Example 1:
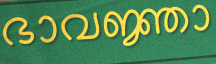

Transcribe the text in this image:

ഭാവജ്ഞാ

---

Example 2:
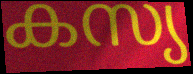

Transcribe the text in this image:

കസ്യ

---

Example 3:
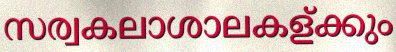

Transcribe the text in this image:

സര്വകലാശാലകള്ക്കും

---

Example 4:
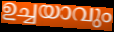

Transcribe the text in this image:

ഉച്ചയാവും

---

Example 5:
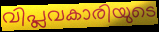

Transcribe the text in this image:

വിപ്ലവകാരിയുടെ